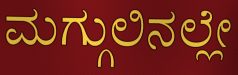
ಮಗ್ಗುಲಿನಲ್ಲೇ